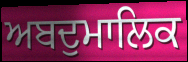
ਅਬਦੁਮਾਲਿਕ